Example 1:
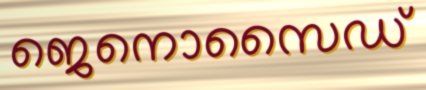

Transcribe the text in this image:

ജെനൊസൈഡ്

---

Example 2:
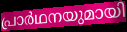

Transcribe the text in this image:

പ്രാർഥനയുമായി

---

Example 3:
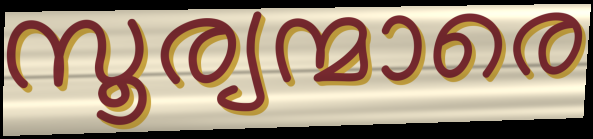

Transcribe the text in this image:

സൂര്യന്മാരെ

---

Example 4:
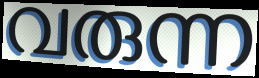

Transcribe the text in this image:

വരുന്ന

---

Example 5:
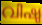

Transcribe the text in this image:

വിഷു